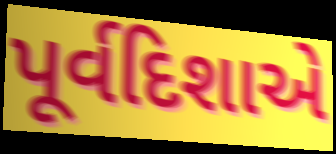
પૂર્વદિશાએ